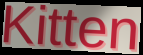
Kitten